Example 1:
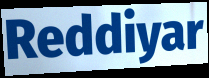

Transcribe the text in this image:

Reddiyar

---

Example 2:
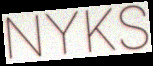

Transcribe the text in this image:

NYKS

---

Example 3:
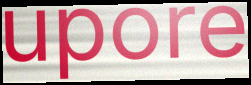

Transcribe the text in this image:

upore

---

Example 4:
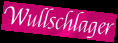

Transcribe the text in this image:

Wullschlager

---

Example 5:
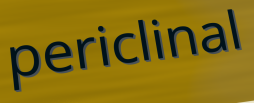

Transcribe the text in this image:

periclinal